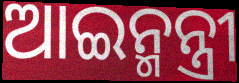
ଆଇନ୍ମନ୍ତ୍ରୀ